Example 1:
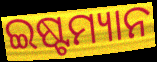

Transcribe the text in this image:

ଇଷ୍ଟମ୍ୟାନ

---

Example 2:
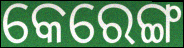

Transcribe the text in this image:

କେରେଙ୍ଗ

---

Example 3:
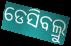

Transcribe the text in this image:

ଡେସିବଲ୍ରୁ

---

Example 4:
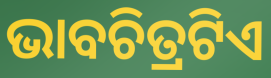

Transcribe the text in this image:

ଭାବଚିତ୍ରଟିଏ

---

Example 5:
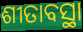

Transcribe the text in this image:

ଶୀତାବସ୍ଥା